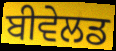
ਬੀਵੇਲਡ